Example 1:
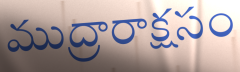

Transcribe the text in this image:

ముద్రారాక్షసం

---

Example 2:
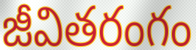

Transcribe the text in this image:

జీవితరంగం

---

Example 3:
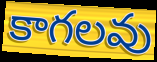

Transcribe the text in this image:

కాగలవు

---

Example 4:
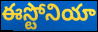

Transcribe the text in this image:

ఈస్టోనియా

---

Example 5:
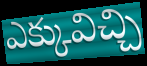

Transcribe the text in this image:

ఎక్కువిచ్చి